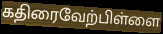
கதிரைவேற்பிள்ளை